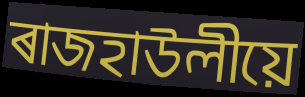
ৰাজহাউলীয়ে